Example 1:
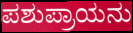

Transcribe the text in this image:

ಪಶುಪ್ರಾಯನು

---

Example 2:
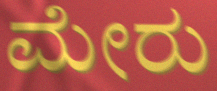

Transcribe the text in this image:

ಮೇರು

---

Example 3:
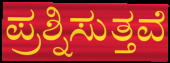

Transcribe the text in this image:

ಪ್ರಶ್ನಿಸುತ್ತವೆ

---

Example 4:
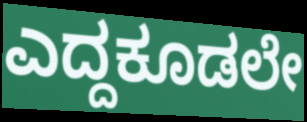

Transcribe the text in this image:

ಎದ್ದಕೂಡಲೇ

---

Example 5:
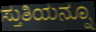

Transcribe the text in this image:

ಸ್ತುತಿಯನ್ನೂ